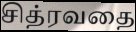
சித்ரவதை